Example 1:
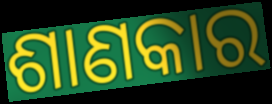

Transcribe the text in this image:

ଶାଣକାର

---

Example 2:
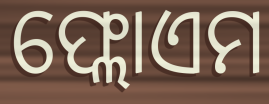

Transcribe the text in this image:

ଫ୍ଲୋଏମ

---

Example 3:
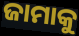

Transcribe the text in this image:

ଜାମାକୁ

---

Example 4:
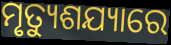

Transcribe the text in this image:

ମୃତ୍ୟୁଶଯ୍ୟାରେ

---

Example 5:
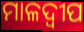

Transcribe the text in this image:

ମାଳଦ୍ଵୀପ